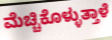
ಮೆಚ್ಚಿಕೊಳ್ಳುತ್ತಾಳೆ